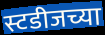
स्टडीजच्या